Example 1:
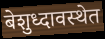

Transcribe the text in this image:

बेशुध्दावस्थेत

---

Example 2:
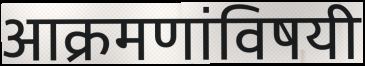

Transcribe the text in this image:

आक्रमणांविषयी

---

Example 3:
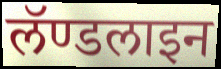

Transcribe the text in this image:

लॅण्डलाइन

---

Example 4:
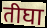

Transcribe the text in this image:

तीघा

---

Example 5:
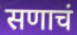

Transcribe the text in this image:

सणाचं